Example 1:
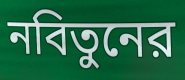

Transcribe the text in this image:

নবিতুনের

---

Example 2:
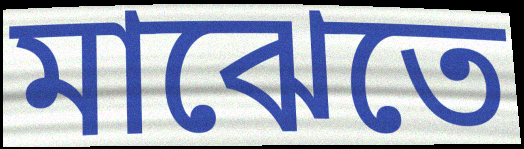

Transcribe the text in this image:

মাঝেতে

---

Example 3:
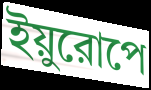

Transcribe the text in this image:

ইয়ুরোপে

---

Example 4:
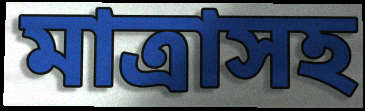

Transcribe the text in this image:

মাত্রাসহ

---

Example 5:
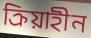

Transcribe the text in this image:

ক্রিয়াহীন